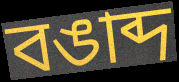
বঙাব্দ